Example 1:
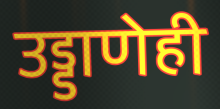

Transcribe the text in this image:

उड्डाणेही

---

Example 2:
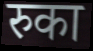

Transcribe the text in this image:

रुका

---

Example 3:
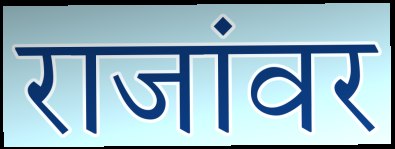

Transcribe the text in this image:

राजांवर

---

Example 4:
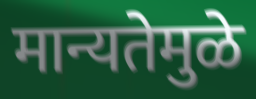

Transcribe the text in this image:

मान्यतेमुळे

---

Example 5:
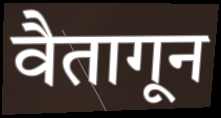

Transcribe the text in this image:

वैतागून